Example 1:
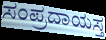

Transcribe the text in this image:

ಸಂಪ್ರದಾಯಸ್ತ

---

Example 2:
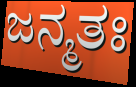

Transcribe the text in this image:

ಜನ್ಮತಃ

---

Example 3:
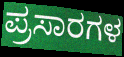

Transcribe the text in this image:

ಪ್ರಸಾರಗಳ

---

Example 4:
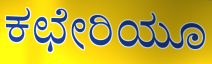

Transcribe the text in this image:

ಕಛೇರಿಯೂ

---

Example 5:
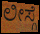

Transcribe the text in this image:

ಲೀಸ್ಗೆ